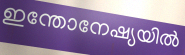
ഇന്തോനേഷ്യയിൽ